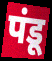
पंडू